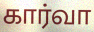
கார்வா